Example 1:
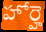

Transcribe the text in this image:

హోర్హె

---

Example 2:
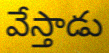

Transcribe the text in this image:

వేస్తాడు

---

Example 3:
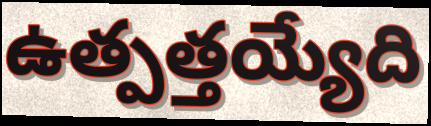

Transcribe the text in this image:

ఉత్పత్తయ్యేది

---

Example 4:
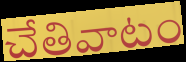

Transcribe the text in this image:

చేతివాటం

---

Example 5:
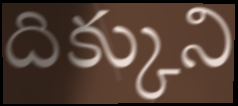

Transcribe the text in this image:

దిక్కుని